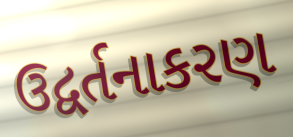
ઉદ્વર્તનાકરણ